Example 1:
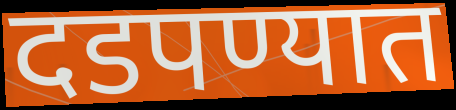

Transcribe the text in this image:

दडपण्यात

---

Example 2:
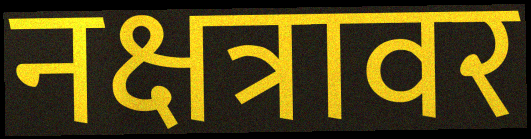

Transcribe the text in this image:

नक्षत्रावर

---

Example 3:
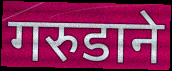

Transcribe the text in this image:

गरुडाने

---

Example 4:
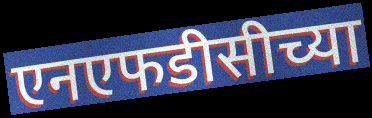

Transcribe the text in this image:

एनएफडीसीच्या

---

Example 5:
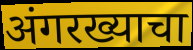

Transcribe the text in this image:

अंगरख्याचा